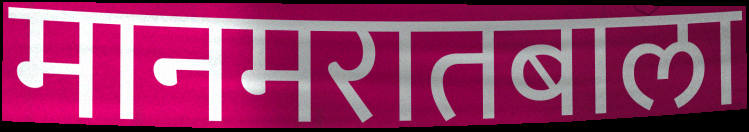
मानमरातबाला